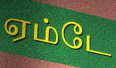
ஏம்டே